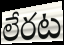
లేరట